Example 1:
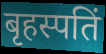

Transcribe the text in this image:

बृहस्पतिं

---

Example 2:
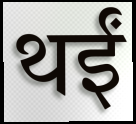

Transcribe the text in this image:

थईं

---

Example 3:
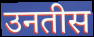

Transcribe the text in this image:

उनतीस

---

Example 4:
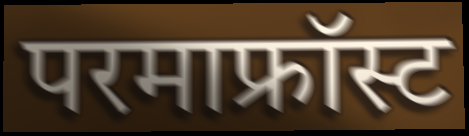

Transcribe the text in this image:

परमाफ्रॉस्ट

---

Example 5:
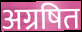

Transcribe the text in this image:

अग्रषित